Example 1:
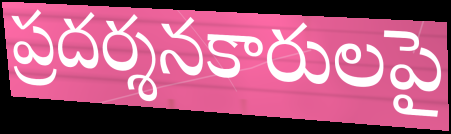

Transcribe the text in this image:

ప్రదర్శనకారులపై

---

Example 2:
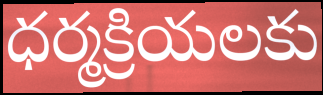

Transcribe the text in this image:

ధర్మక్రియలకు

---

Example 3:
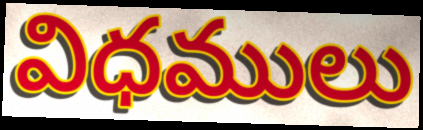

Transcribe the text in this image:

విధములు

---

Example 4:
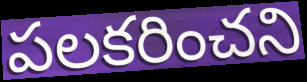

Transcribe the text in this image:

పలకరించని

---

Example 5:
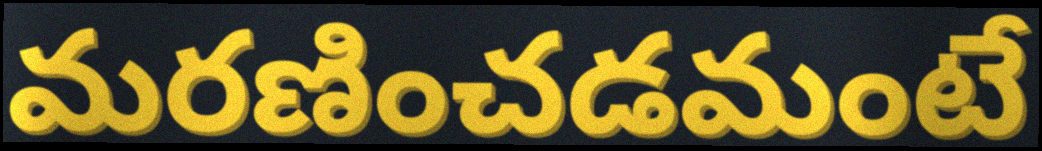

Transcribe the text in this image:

మరణించడమంటే